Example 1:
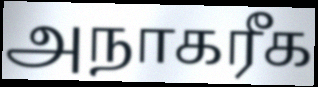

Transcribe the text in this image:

அநாகரீக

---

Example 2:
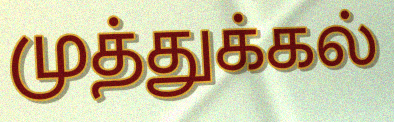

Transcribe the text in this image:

முத்துக்கல்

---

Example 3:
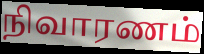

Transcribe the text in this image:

நிவாரணம்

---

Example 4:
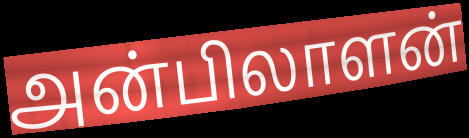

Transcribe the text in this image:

அன்பிலாளன்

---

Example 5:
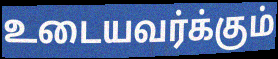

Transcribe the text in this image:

உடையவர்க்கும்